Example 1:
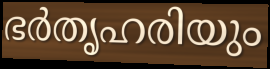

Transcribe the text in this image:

ഭർതൃഹരിയും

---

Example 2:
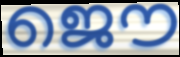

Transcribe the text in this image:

ജൌ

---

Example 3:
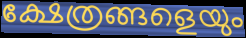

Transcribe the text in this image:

ക്ഷേത്രങ്ങളെയും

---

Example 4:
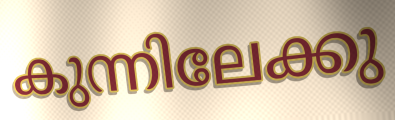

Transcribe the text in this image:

കുന്നിലേക്കു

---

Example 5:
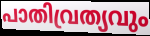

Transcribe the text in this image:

പാതിവ്രത്യവും